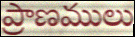
ప్రాణములు